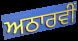
ਅਠਾਰਵੀਂ